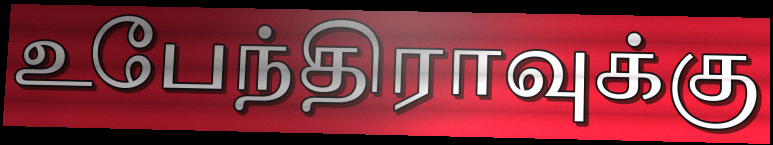
உபேந்திராவுக்கு